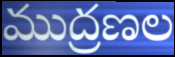
ముద్రణల